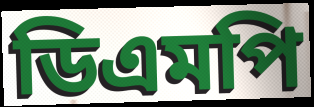
ডিএমপি